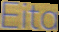
Eita